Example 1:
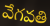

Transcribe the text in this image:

వేగవతి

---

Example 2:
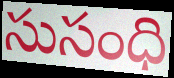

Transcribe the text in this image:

సుసంధి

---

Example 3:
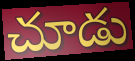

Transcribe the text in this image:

చూడు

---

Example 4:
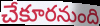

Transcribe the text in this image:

చేకూరనుంది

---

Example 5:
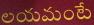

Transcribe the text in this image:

లయమంటే